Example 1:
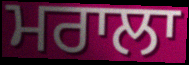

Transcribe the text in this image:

ਮਰਾਲਾ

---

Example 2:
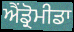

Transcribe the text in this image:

ਐਂਡ੍ਰੋਮੀਡਾ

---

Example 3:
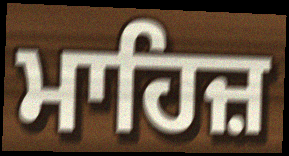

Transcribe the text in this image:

ਮਾਹਿਜ਼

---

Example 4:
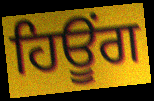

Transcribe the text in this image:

ਹਿਊੰਗ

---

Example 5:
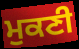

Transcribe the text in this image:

ਮੁਕਣੀ